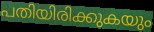
പതിയിരിക്കുകയും